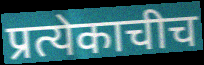
प्रत्येकाचीच